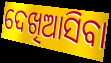
ଦେଖିଆସିବା